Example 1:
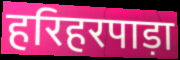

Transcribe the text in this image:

हरिहरपाड़ा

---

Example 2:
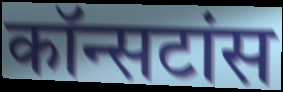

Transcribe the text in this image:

कॉन्सटांस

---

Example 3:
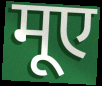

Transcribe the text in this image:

मूए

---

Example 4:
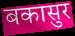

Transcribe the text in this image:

बकासुर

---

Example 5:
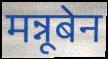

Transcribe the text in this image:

मन्नूबेन